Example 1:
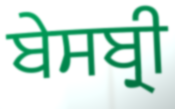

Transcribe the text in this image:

ਬੇਸਬ੍ਰੀ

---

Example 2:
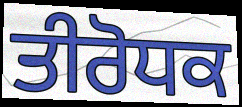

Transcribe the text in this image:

ਤੀਰੋਧਕ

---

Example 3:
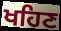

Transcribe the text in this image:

ਖਹਿਣ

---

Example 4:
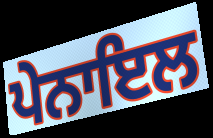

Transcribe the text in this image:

ਪੇਨਾਇਲ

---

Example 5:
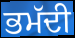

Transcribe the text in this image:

ਭਮੱਦੀ